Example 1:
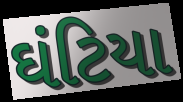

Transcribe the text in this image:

ઘંટિયા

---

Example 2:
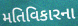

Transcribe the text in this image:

મતિવિકારના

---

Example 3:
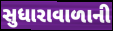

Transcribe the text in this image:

સુધારાવાળાની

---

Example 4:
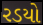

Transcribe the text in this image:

રડયો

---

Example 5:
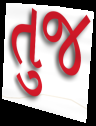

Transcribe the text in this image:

તુજ